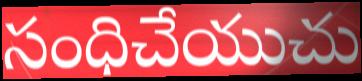
సంధిచేయుచు